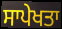
ਸਾਪੇਖਤਾ